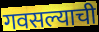
गवसल्याची